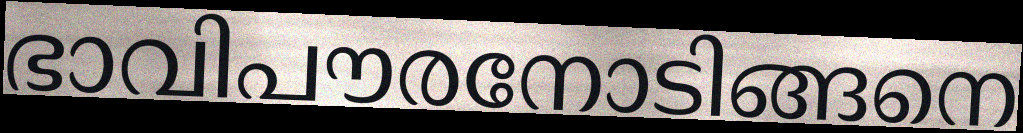
ഭാവിപൗരനോടിങ്ങനെ